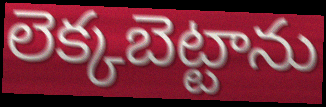
లెక్కబెట్టాను